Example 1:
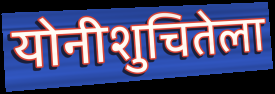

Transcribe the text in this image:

योनीशुचितेला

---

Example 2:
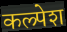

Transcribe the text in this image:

कल्पेश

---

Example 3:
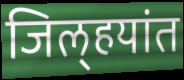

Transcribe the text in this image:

जिल्हयांत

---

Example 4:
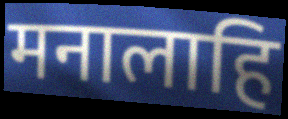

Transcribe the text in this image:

मनालाहि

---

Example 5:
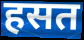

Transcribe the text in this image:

हसत